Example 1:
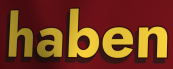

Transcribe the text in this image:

haben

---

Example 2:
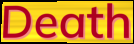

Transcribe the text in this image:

Death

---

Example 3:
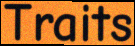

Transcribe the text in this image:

Traits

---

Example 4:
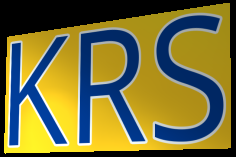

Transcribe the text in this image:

KRS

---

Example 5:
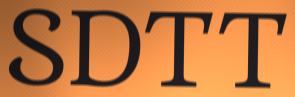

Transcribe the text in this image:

SDTT